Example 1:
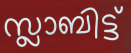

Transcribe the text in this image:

സ്ലാബിട്ട്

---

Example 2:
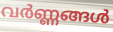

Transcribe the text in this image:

വർണ്ണങ്ങൾ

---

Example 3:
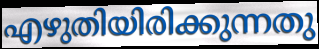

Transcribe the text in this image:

എഴുതിയിരിക്കുന്നതു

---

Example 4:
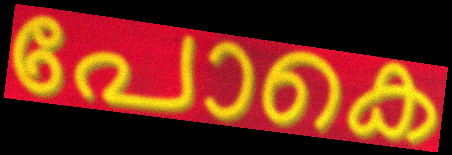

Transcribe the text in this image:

പോകെ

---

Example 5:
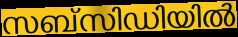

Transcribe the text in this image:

സബ്സിഡിയിൽ